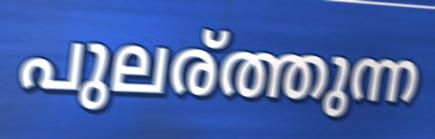
പുലര്ത്തുന്ന